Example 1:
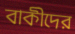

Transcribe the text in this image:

বাকীদের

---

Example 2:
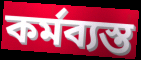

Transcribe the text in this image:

কর্মব্যস্ত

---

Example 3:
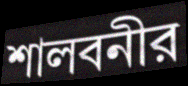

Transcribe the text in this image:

শালবনীর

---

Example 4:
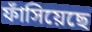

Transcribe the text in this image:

ফাঁসিয়েছে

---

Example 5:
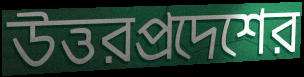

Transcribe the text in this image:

উত্তরপ্রদেশের